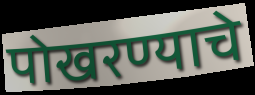
पोखरण्याचे